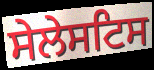
ਸੇਲੇਸਟਿਸ